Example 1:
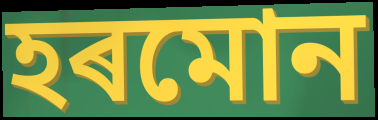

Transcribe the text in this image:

হৰমোন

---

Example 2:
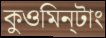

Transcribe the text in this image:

কুওমিন্‌টাং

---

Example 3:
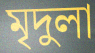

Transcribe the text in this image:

মৃদুলা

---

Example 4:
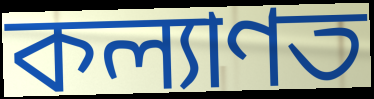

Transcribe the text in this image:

কল্যাণত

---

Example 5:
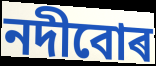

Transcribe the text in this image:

নদীবোৰ